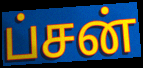
ப்சன்